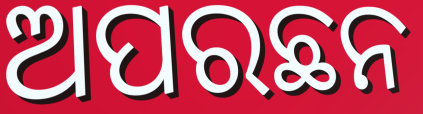
ଅପରଛନ